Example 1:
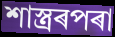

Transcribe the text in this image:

শাস্ত্ৰৰপৰা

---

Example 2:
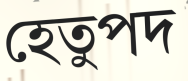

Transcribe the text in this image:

হেতুপদ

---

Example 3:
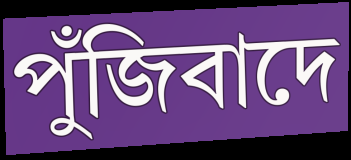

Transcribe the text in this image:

পুঁজিবাদে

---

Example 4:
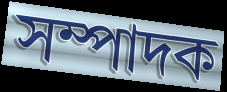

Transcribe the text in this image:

সম্পাদক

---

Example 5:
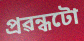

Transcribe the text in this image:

প্ৰৱন্ধটো